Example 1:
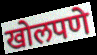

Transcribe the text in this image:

खोलपणे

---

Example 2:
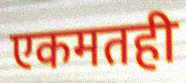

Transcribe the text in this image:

एकमतही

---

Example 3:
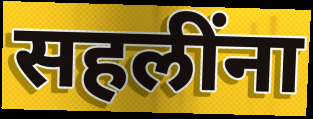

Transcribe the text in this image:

सहलींना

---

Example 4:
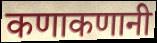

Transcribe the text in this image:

कणाकणानी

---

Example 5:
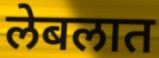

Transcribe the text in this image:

लेबलात